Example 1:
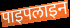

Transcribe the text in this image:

पाइपलाइन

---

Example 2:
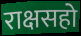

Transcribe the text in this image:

राक्षसहो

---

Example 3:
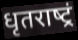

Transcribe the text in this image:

धृतराष्ट्रं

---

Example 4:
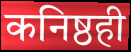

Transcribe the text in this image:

कनिष्ठही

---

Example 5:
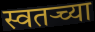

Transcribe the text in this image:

स्वतर्‍च्या